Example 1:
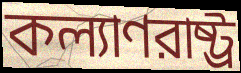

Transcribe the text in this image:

কল্যাণরাষ্ট্র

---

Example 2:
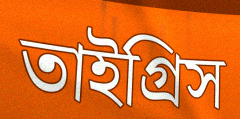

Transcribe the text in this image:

তাইগ্রিস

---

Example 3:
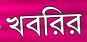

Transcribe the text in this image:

খবরির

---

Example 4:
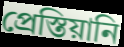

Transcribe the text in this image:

প্রেস্তিয়ানি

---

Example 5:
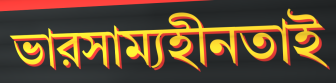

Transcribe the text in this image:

ভারসাম্যহীনতাই